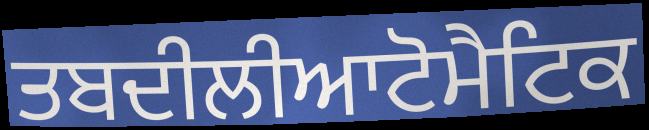
ਤਬਦੀਲੀਆਟੋਮੈਟਿਕ